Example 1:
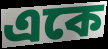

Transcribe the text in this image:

একে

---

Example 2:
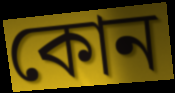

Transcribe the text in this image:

কোন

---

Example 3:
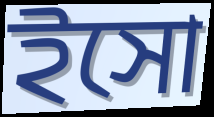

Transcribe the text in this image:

ইসো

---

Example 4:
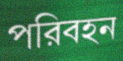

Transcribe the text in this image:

পরিবহন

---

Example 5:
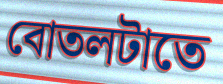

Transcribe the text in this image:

বোতলটাতে